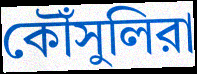
কৌঁসুলিরা